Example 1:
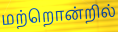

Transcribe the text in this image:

மற்றொன்றில்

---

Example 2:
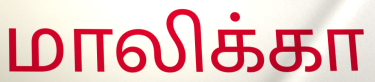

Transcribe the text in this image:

மாலிக்கா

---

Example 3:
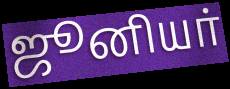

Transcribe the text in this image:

ஜூனியர்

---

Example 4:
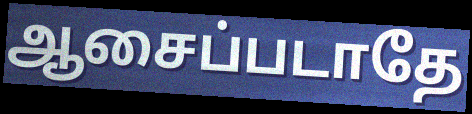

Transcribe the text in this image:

ஆசைப்படாதே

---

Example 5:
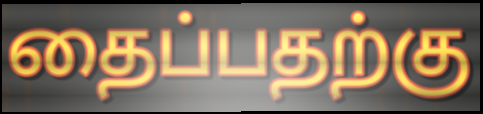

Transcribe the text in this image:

தைப்பதற்கு